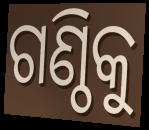
ଗଣ୍ଠିକୁ